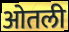
ओतली